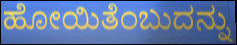
ಹೋಯಿತೆಂಬುದನ್ನು